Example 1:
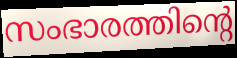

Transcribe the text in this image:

സംഭാരത്തിന്റെ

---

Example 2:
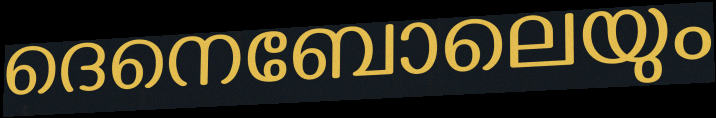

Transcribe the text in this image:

ദെനെബോലെയും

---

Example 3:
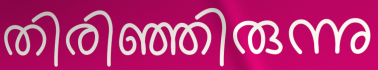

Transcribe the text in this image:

തിരിഞ്ഞിരുന്നു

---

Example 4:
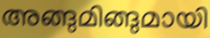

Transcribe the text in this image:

അങ്ങുമിങ്ങുമായി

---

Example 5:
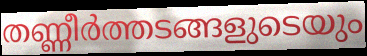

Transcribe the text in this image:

തണ്ണീർത്തടങ്ങളുടെയും